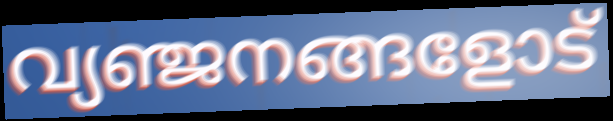
വ്യഞ്ജനങ്ങളോട്